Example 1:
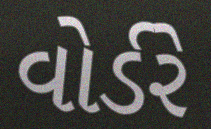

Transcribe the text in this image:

વોર્ડરે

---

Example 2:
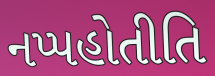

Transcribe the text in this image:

નપ્પહોતીતિ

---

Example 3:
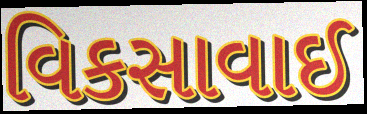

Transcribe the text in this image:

વિકસાવાઈ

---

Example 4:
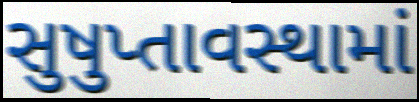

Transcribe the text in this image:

સુષુપ્તાવસ્થામાં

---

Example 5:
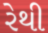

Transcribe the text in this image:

રેથી